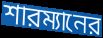
শারম্যানের